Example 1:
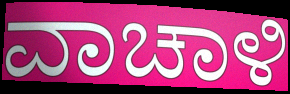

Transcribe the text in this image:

ವಾಚಾಳಿ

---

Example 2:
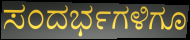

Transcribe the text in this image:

ಸಂದರ್ಭಗಳಿಗೂ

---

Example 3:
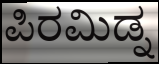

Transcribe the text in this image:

ಪಿರಮಿಡ್ನ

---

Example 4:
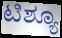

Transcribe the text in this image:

ಟಿಶ್ಯೂ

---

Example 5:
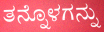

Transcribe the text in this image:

ತನ್ನೊಳಗನ್ನು